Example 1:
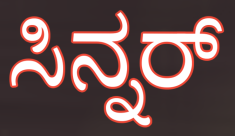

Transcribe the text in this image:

ಸಿನ್ನರ್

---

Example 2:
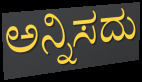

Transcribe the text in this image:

ಅನ್ನಿಸದು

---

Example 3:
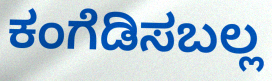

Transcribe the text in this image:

ಕಂಗೆಡಿಸಬಲ್ಲ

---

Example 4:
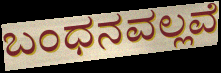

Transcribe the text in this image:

ಬಂಧನವಲ್ಲವೆ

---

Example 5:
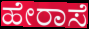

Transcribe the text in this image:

ಹೇರಾಸೆ